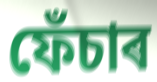
ফেঁচাৰ